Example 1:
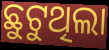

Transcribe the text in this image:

ଛୁଟୁଥିଲା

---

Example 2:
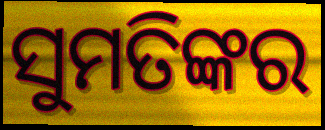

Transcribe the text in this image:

ସୁମତିଙ୍କର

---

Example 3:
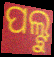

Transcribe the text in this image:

ପଲ୍ଟୁ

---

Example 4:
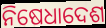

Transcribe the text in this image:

ନିଷେଧାଦେଶ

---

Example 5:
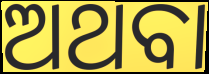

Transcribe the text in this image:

ଅଥବା